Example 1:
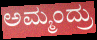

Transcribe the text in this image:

ಅಮ್ಮಂದ್ರು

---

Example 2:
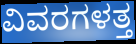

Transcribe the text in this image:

ವಿವರಗಳತ್ತ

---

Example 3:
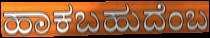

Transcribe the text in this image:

ಹಾಕಬಹುದೆಂಬ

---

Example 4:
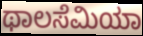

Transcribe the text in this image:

ಥಾಲಸೆಮಿಯಾ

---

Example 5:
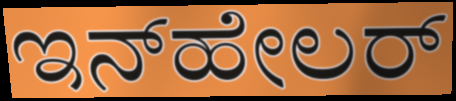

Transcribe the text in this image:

ಇನ್‌ಹೇಲರ್